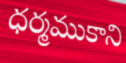
ధర్మముకాని